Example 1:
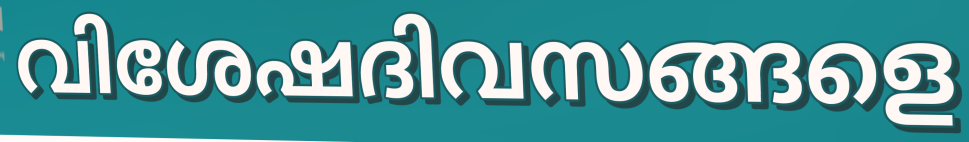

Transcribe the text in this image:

വിശേഷദിവസങ്ങളെ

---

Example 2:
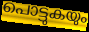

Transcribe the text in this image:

പൊട്ടുകയും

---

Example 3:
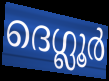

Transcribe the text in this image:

ദെഗ്ലൂർ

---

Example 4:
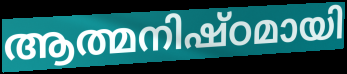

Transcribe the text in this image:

ആത്മനിഷ്ഠമായി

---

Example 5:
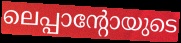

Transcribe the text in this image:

ലെപ്പാന്റോയുടെ